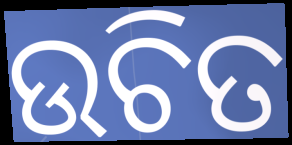
ଉଚିତ